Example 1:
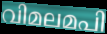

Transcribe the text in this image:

വിമലമപി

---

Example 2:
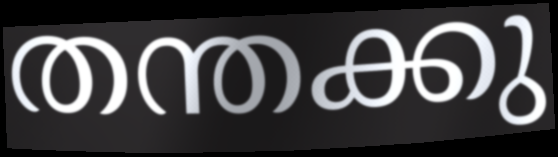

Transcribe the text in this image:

തന്തക്കു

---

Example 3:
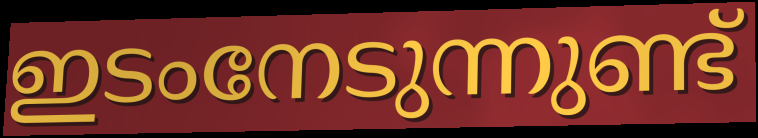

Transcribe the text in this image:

ഇടംനേടുന്നുണ്ട്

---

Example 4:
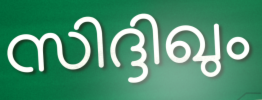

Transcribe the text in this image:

സിദ്ദിഖും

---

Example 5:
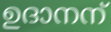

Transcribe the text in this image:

ഉദാനന്